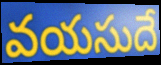
వయసుదే